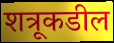
शत्रूकडील